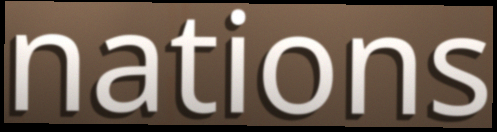
nations